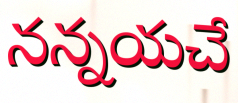
నన్నయచే